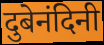
दुबेनंदिनी